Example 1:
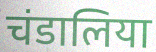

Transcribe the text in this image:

चंडालिया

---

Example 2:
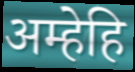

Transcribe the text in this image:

अम्हेहि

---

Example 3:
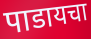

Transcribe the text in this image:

पाडायचा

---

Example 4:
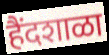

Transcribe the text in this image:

हैंदशाळा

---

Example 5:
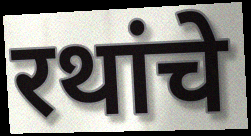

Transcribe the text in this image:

रथांचे